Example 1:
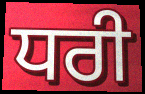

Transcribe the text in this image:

ਧਰੀ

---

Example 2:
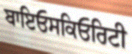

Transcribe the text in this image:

ਬਾਇਓਸਕਿਓਰਿਟੀ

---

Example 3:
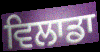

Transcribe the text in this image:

ਵਿਲਾਡਾ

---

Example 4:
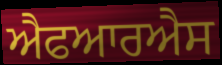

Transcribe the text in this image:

ਐਫਆਰਐਸ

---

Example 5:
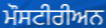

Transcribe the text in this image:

ਮੌਸਟੀਰੀਅਨ